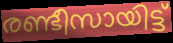
രണ്ടീസായിട്ട്